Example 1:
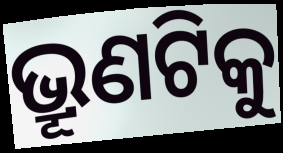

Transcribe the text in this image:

ଭ୍ରୂଣଟିକୁ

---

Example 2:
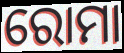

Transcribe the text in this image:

ରୋମା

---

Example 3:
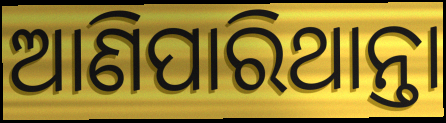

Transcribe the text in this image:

ଆଣିପାରିଥାନ୍ତା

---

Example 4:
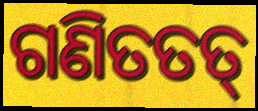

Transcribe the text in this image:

ଗଣିତତତ୍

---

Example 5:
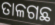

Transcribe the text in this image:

ତାଳଗଛ